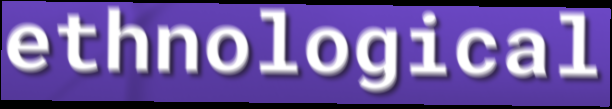
ethnological